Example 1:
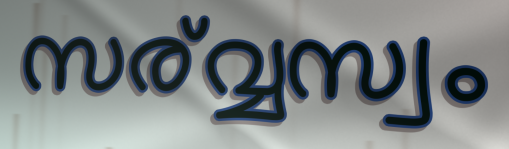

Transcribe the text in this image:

സര്വ്വസ്വം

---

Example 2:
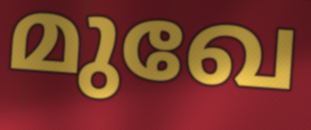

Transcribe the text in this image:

മുഖേ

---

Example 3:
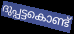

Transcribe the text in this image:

ദുപ്പട്ടകൊണ്ട്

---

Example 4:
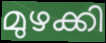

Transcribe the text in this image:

മുഴക്കി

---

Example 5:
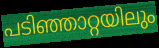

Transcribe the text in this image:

പടിഞ്ഞാറ്റയിലും